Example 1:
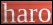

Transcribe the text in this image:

haro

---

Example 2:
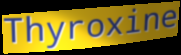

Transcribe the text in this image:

Thyroxine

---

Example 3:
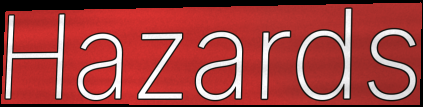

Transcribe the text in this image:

Hazards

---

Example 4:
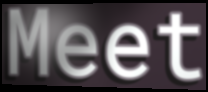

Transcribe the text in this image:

Meet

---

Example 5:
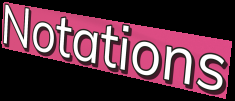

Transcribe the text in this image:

Notations